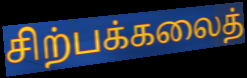
சிற்பக்கலைத்